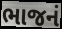
ભાજનં